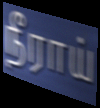
நீராய்